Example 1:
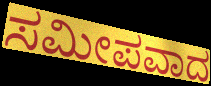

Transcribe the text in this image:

ಸಮೀಪವಾದ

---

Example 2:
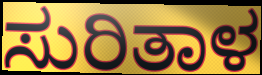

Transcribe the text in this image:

ಸುರಿತಾಳ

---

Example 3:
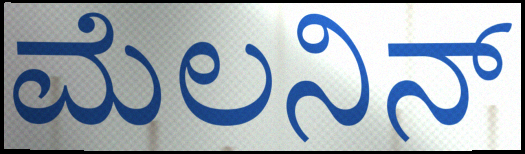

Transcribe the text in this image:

ಮೆಲನಿನ್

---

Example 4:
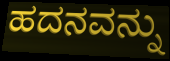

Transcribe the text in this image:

ಹದನವನ್ನು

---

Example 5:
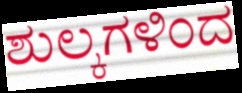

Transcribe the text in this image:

ಶುಲ್ಕಗಳಿಂದ